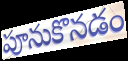
పూనుకొనడం